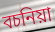
বচনিয়া